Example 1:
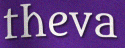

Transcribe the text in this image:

theva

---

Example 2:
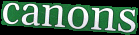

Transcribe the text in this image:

canons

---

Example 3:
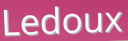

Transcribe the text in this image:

Ledoux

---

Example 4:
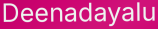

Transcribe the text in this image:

Deenadayalu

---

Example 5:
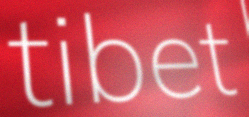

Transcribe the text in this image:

tibet